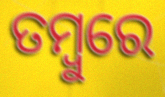
ତମ୍ବୁରେ